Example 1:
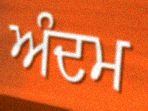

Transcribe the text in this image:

ਅੰਦਮ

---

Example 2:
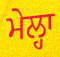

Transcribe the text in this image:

ਮੇਲ੍ਹਾ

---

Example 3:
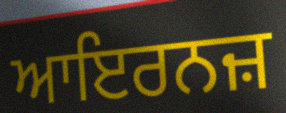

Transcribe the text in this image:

ਆਇਰਨਜ਼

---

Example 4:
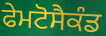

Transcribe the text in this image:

ਫੇਮਟੋਸੈਕੰਡ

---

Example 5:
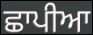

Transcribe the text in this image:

ਛਾਪੀਆ